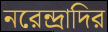
নরেন্দ্রাদির